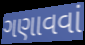
ગણાવવાં